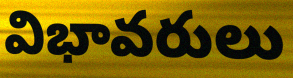
విభావరులు